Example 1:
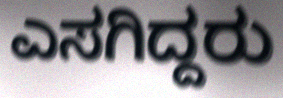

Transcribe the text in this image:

ಎಸಗಿದ್ದರು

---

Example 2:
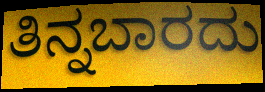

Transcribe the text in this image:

ತಿನ್ನಬಾರದು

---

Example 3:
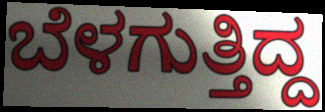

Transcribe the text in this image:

ಬೆಳಗುತ್ತಿದ್ದ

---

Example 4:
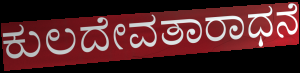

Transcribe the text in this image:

ಕುಲದೇವತಾರಾಧನೆ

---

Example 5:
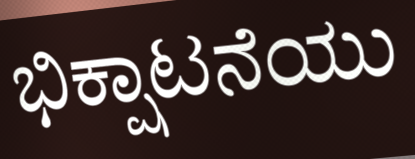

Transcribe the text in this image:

ಭಿಕ್ಷಾಟನೆಯು